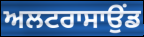
ਅਲਟਰਾਸਾਉਂਡ